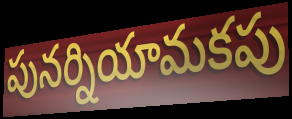
పునర్నియామకపు